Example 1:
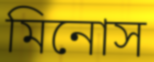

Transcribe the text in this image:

মিনোস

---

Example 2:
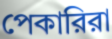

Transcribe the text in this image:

পেকারিরা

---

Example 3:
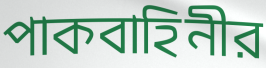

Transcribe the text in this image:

পাকবাহিনীর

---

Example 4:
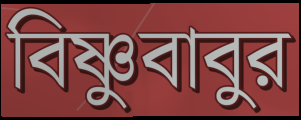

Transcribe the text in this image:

বিষ্ণুবাবুর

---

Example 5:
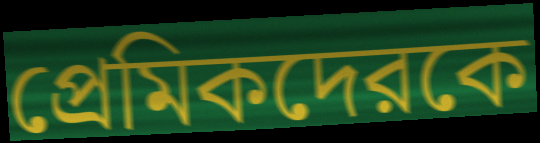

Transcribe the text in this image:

প্রেমিকদেরকে